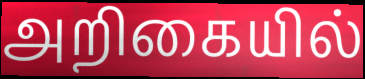
அறிகையில்